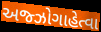
અજ્ઝોગાહેત્વા